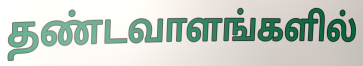
தண்டவாளங்களில்